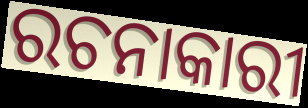
ରଚନାକାରୀ